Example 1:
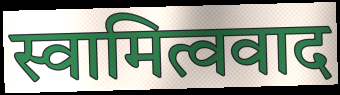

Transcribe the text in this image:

स्वामित्ववाद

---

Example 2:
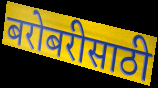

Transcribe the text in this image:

बरोबरीसाठी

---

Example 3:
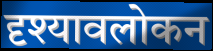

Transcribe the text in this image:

दृश्‍यावलोकन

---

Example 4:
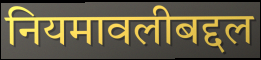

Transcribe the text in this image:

नियमावलीबद्दल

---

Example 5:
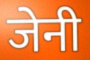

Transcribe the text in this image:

जेनी